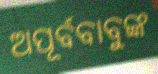
ଅପୂର୍ବବାବୁଙ୍କ